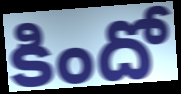
కిందో